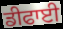
ਡੀਫਾਈ